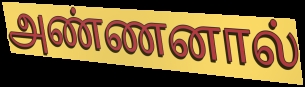
அண்ணனால்